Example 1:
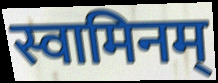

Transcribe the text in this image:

स्वामिनम्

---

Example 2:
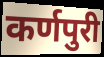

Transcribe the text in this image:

कर्णपुरी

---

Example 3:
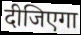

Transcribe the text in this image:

दीजिएगा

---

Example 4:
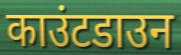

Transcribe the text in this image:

काउंटडाउन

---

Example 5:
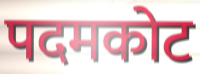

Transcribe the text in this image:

पदमकोट